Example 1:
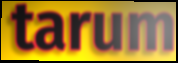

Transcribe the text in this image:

tarum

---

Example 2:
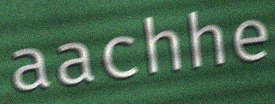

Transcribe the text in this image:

aachhe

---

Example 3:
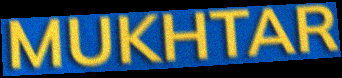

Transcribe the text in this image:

MUKHTAR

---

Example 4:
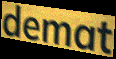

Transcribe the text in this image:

demat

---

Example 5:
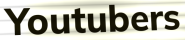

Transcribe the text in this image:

Youtubers